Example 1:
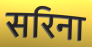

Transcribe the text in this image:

सरिना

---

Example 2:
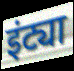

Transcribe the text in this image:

इंट्या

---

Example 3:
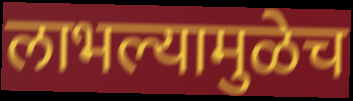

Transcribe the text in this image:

लाभल्यामुळेच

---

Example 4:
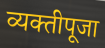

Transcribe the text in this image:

व्यक्तीपूजा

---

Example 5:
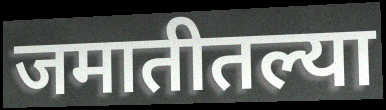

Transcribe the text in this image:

जमातीतल्या